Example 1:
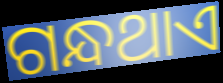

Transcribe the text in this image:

ଗନ୍ଧଥାଏ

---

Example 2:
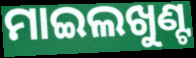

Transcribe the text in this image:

ମାଇଲଖୁଣ୍ଟ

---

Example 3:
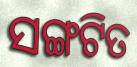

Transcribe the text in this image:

ସଙ୍ଗଟିତ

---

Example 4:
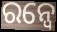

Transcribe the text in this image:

ରନ୍ୱେ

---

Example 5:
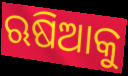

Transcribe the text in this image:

ଋଷିଆକୁ